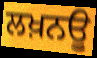
ਲਖ਼ਨਊ